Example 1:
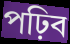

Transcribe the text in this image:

পঢ়িব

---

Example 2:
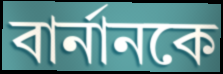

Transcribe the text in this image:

বাৰ্নানকে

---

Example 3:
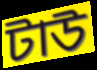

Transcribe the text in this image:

টাউ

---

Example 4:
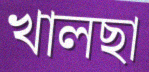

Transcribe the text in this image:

খালছা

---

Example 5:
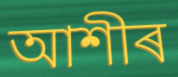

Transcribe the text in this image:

আশীৰ